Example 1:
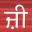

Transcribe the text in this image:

ਜ਼ੀ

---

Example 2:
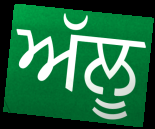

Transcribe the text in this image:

ਅੱਲੂ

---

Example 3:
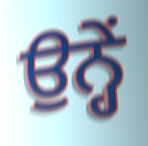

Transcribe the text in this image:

ਉਨ੍ਹੇਂ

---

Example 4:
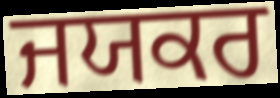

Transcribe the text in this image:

ਜਯਕਰ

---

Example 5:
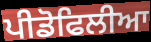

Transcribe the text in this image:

ਪੀਡੋਫਿਲੀਆ